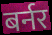
बर्नर